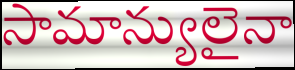
సామాన్యులైనా